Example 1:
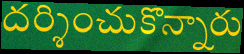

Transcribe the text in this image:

దర్శించుకొన్నారు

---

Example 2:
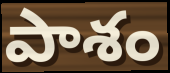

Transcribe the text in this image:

పాశం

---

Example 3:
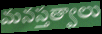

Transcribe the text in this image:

మనస్తత్వాలు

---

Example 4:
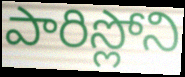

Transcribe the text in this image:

పారిస్లోని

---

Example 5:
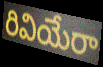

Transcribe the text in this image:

రివియేరా